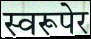
स्वरूपेर